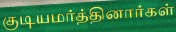
குடியமர்த்தினார்கள்